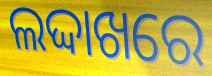
ଲଦ୍ଦାଖରେ